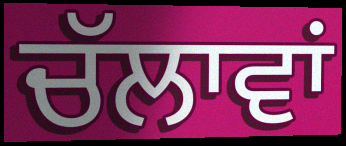
ਚੱਲਾਵਾਂ